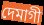
দেমাগী